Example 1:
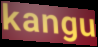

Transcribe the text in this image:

kangu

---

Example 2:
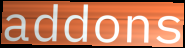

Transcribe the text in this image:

addons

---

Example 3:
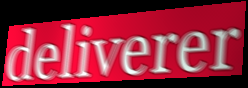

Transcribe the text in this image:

deliverer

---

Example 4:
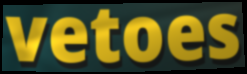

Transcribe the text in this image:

vetoes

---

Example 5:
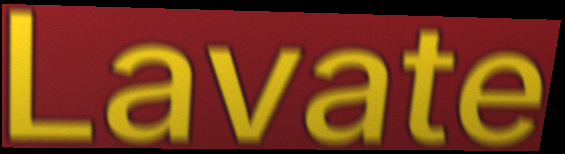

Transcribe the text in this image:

Lavate